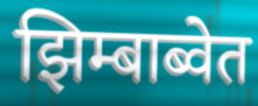
झिम्बाब्वेत